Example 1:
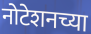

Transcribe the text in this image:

नोटेशनच्या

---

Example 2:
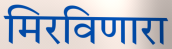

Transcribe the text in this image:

मिरविणारा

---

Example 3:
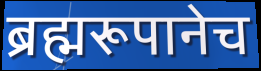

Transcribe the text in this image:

ब्रह्मरूपानेच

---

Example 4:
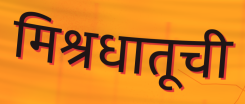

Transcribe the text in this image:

मिश्रधातूची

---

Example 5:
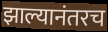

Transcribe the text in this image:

झाल्यानंतरच